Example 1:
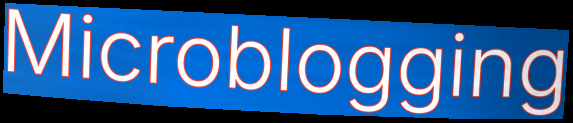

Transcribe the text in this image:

Microblogging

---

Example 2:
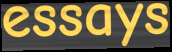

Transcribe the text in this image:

essays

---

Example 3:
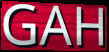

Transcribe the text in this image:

GAH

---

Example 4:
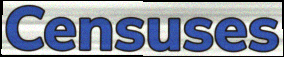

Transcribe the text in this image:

Censuses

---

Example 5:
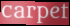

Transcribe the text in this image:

carpet